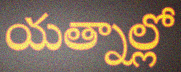
యత్నాల్లో